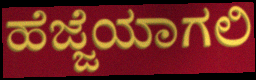
ಹೆಜ್ಜೆಯಾಗಲಿ